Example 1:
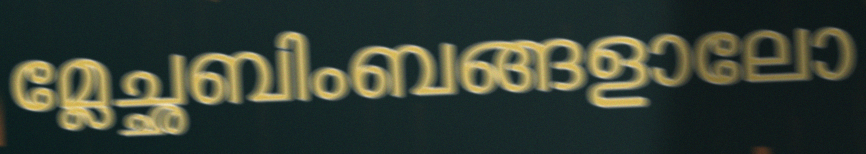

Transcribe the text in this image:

മ്ലേച്ഛബിംബങ്ങളാലോ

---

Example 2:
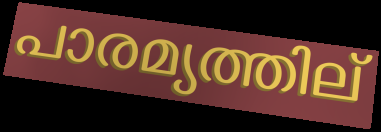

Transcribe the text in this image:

പാരമ്യത്തില്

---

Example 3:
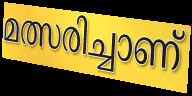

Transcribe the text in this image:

മത്സരിച്ചാണ്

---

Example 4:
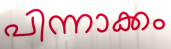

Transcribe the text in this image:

പിന്നാക്കം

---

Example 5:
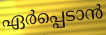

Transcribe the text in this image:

ഏർപ്പെടാൻ